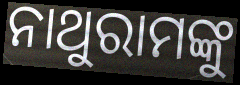
ନାଥୁରାମଙ୍କୁ